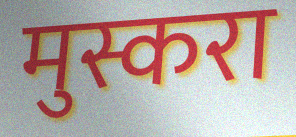
मुस्करा